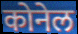
कोनेल